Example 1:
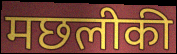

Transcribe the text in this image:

मछलीकी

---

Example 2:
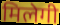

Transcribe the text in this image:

मिलेगी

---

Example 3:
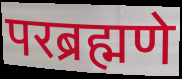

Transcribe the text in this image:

परब्रह्मणे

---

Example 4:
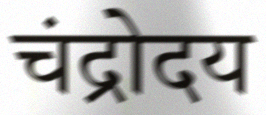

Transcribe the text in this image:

चंद्रोदय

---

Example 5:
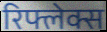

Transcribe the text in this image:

रिफ्लेक्स